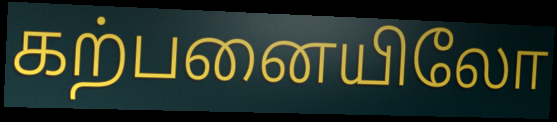
கற்பனையிலோ